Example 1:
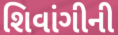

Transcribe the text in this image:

શિવાંગીની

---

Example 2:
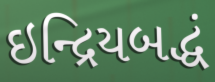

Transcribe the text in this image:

ઇન્દ્રિયબદ્ધં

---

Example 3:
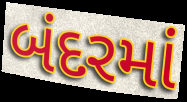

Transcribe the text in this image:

બંદરમાં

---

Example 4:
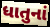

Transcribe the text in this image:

ધાતુનાં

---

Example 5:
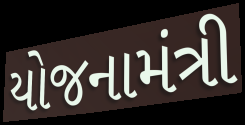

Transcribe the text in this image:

યોજનામંત્રી